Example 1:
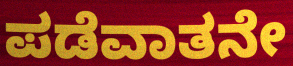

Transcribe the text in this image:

ಪಡೆವಾತನೇ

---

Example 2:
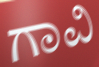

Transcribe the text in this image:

ಗಾವಿ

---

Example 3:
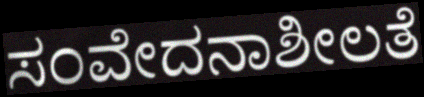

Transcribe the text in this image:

ಸಂವೇದನಾಶೀಲತೆ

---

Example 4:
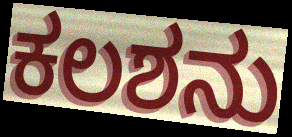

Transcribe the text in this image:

ಕಲಶನು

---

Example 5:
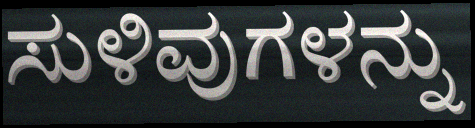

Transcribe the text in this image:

ಸುಳಿವುಗಳನ್ನು